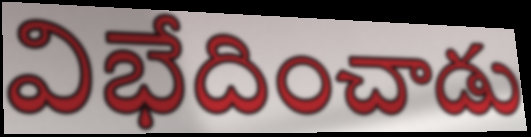
విభేదించాడు